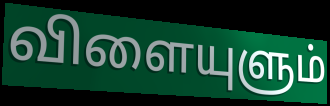
விளையுளும்